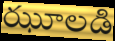
ఝూలడి